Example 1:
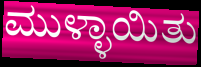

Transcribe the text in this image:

ಮುಳ್ಳಾಯಿತು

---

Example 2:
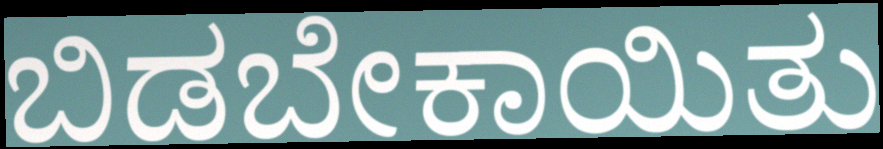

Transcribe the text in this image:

ಬಿಡಬೇಕಾಯಿತು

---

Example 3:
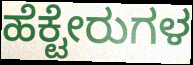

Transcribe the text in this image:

ಹೆಕ್ಟೇರುಗಳ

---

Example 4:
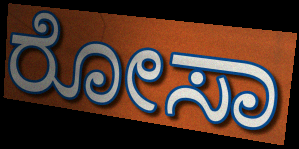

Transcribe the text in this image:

ರೋಸಾ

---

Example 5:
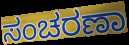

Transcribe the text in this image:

ಸಂಚರಣಾ